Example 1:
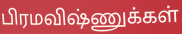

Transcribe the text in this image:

பிரமவிஷ்ணுக்கள்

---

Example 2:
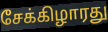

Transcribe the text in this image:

சேக்கிழாரது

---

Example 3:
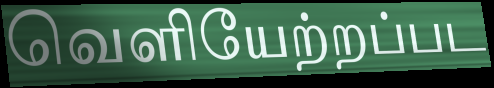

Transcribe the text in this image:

வெளியேற்றப்பட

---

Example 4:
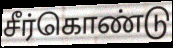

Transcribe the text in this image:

சீர்கொண்டு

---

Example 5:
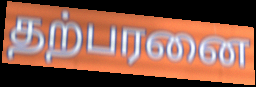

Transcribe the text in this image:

தற்பரனை